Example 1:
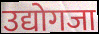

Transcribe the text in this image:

उद्योगजा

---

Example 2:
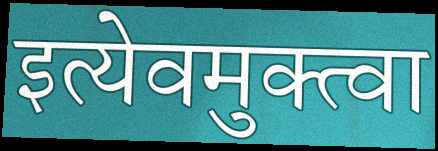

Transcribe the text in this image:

इत्येवमुक्त्वा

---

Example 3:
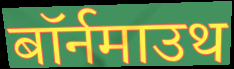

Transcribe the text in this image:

बॉर्नमाउथ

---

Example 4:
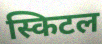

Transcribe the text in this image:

स्किटल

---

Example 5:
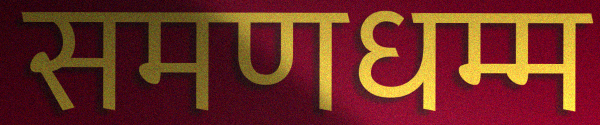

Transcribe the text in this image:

समणधम्म